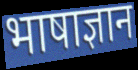
भाषाज्ञान